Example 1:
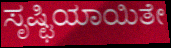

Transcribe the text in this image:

ಸೃಷ್ಟಿಯಾಯಿತೇ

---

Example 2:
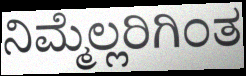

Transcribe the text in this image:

ನಿಮ್ಮೆಲ್ಲರಿಗಿಂತ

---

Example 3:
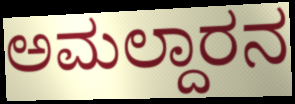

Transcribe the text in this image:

ಅಮಲ್ದಾರನ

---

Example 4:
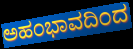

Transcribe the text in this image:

ಅಹಂಭಾವದಿಂದ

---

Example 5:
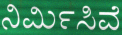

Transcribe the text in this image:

ನಿರ್ಮಿಸಿವೆ